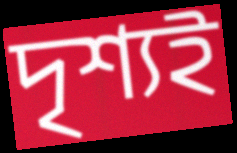
দৃশ্যই